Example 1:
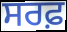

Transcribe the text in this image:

ਸਰਫ਼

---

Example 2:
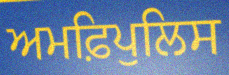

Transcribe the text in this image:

ਅਮਫ਼ਿਪੁਲਿਸ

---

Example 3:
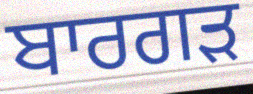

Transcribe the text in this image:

ਬਾਰਗੜ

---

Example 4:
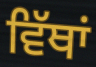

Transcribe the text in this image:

ਵਿੱਥਾਂ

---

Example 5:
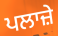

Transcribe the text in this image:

ਪਲਾਜ਼ੇ